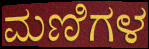
ಮಣಿಗಳ